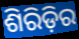
ଶିରିଡ଼ିର